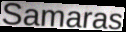
Samaras